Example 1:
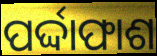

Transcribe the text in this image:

ପର୍ଦ୍ଦାଫାଶ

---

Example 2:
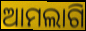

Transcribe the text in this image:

ଆମଲାଗି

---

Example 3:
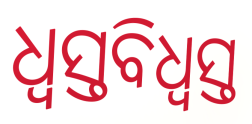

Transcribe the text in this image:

ଧ୍ୱସ୍ତବିଧ୍ୱସ୍ତ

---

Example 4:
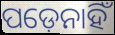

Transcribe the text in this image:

ପଡ଼େନାହିଁ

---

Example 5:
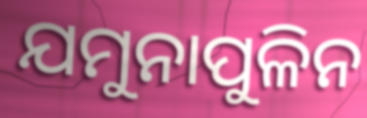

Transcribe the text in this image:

ଯମୁନାପୁଳିନ